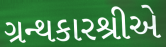
ગ્રન્થકારશ્રીએ